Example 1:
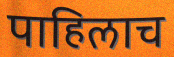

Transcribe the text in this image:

पाहिलाच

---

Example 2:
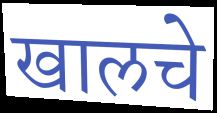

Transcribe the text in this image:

खालचे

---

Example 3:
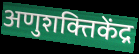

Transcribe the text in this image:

अणुशक्तिकेंद्र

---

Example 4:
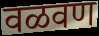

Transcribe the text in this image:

वळवण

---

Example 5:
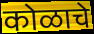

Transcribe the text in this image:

कोळाचे